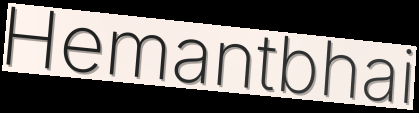
Hemantbhai